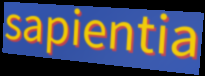
sapientia